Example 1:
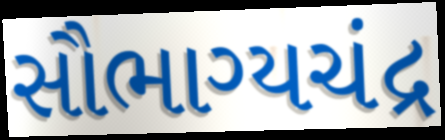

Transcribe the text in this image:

સૌભાગ્યચંદ્ર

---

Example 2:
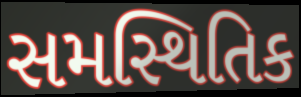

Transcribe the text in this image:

સમસ્થિતિક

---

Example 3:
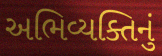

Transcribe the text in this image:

અભિવ્યક્તિનું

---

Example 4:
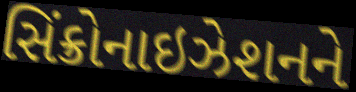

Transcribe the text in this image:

સિંક્રોનાઇઝેશનને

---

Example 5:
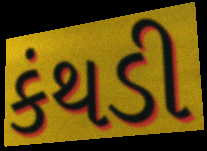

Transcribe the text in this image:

કંથડી